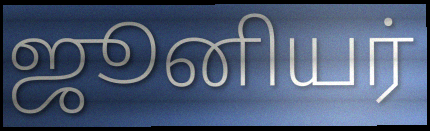
ஜூனியர்